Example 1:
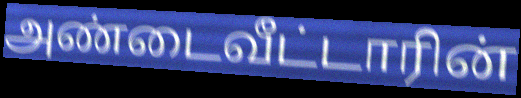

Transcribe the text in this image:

அண்டைவீட்டாரின்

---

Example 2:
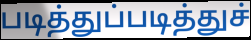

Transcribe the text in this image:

படித்துப்படித்துச்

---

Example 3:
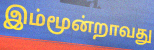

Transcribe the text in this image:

இம்மூன்றாவது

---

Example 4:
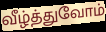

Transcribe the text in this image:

வீழ்த்துவோம்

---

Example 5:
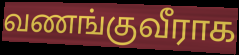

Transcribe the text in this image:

வணங்குவீராக